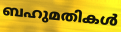
ബഹുമതികൾ